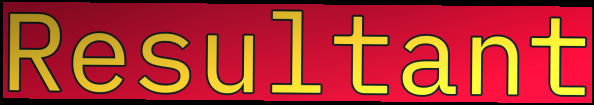
Resultant